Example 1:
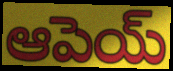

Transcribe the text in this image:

ఆపెయ్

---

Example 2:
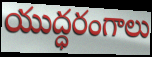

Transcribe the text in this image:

యుద్ధరంగాలు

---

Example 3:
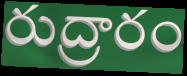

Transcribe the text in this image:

రుద్రారం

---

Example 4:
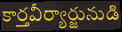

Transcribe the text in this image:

కార్తవీర్యార్జునుడి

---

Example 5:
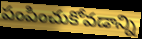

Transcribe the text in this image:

పంపించుకోవడాన్ని